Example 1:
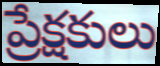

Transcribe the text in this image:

ప్రేక్షకులు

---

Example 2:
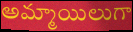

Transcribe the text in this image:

అమ్మాయిలుగా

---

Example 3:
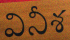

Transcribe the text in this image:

వినీశ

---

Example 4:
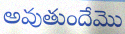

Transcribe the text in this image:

అవుతుందేమొ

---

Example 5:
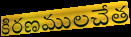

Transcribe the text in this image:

కిరణములచేత